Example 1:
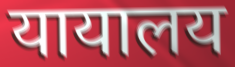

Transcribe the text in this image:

यायालय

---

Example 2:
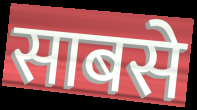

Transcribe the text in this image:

साबसे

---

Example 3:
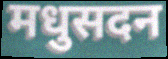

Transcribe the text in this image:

मधुसदन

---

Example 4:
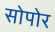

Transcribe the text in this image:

सोपोर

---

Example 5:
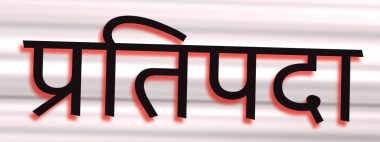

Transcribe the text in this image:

प्रतिपदा